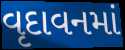
વૃદાવનમાં